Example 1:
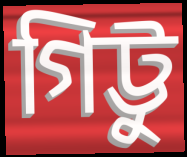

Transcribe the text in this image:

গিট্টু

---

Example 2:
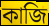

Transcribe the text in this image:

কাজি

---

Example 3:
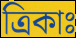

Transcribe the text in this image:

ত্রিকাঃ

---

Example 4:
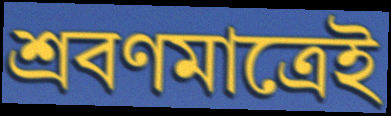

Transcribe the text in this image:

শ্রবণমাত্রেই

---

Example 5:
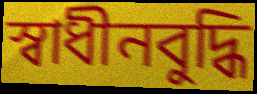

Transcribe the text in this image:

স্বাধীনবুদ্ধি